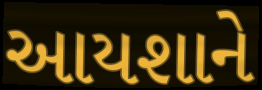
આયશાને